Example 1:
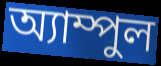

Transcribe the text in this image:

অ্যাম্পুল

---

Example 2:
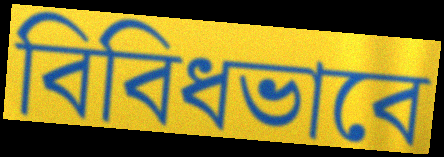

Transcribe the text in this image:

বিবিধভাবে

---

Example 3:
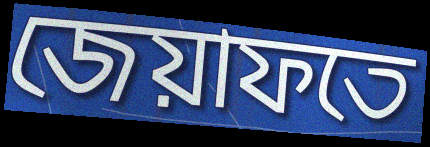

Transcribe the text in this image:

জেয়াফতে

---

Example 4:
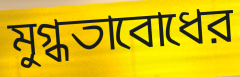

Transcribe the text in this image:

মুগ্ধতাবোধের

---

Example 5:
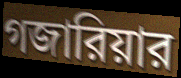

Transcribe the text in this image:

গজারিয়ার